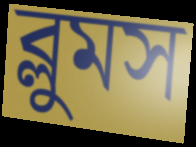
ব্লুমস